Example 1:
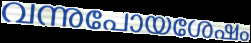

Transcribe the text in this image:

വന്നുപോയശേഷം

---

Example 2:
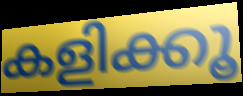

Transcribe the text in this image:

കളിക്കൂ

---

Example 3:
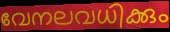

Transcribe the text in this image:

വേനലവധിക്കും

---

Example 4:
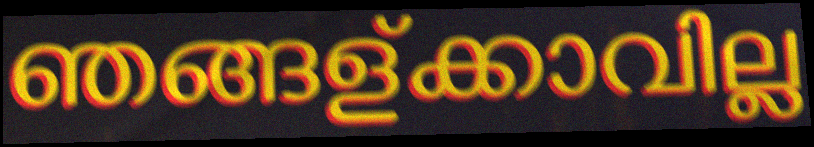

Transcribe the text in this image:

ഞങ്ങള്ക്കാവില്ല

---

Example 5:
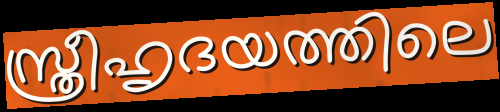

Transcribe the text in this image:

സ്ത്രീഹൃദയത്തിലെ